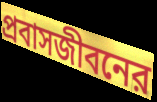
প্রবাসজীবনের